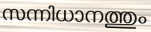
സന്നിധാനത്തും